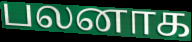
பலனாக